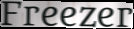
Freezer